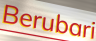
Berubari